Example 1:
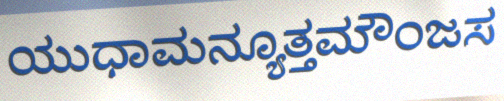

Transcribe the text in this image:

ಯುಧಾಮನ್ಯೂತ್ತಮೌಂಜಸ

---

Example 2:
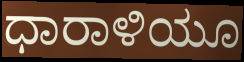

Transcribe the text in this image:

ಧಾರಾಳಿಯೂ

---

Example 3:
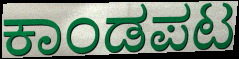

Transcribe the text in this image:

ಕಾಂಡಪಟ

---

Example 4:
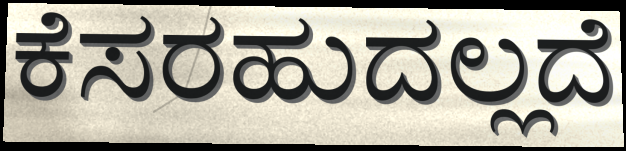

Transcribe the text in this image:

ಕೆಸರಹುದಲ್ಲದೆ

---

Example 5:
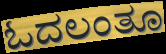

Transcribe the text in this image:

ಓದಲಂತೂ